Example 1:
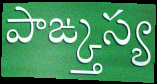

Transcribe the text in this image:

పాఙ్క్తస్య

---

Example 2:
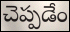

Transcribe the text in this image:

చెప్పడేం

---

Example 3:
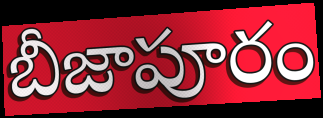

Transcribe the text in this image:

బీజాపూరం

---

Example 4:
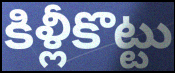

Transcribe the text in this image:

కిళ్లీకొట్టు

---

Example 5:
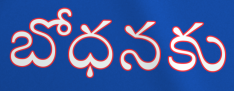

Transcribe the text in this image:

బోధనకు